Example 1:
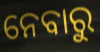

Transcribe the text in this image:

ନେବାରୁ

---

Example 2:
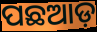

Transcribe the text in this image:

ପଛଆଡ଼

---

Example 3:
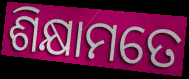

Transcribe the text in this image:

ଶିକ୍ଷାମତେ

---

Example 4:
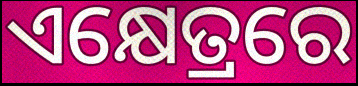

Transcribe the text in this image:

ଏକ୍ଷେତ୍ରରେ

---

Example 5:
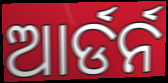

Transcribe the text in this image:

ଆର୍ଡର୍ନ